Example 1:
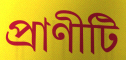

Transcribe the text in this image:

প্রাণীটি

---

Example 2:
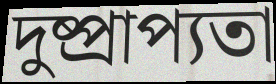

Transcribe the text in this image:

দুষ্প্রাপ্যতা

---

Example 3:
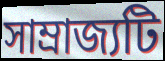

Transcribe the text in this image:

সাম্রাজ্যটি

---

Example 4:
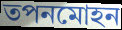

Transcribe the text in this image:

তপনমোহন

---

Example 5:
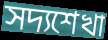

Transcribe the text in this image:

সদ্যশেখা